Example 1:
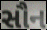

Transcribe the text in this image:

સૌન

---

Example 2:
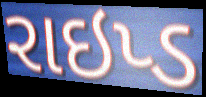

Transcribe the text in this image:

રાઇપ્ડ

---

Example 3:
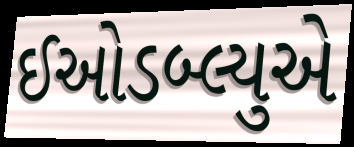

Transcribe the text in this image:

ઈઓડબ્લ્યુએ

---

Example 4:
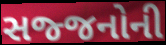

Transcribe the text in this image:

સજ્જનોની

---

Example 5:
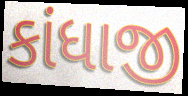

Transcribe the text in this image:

કાંધાજી